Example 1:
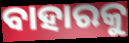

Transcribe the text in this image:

ବାହାରକୁ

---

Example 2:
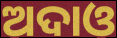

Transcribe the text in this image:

ଅଦାଓ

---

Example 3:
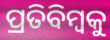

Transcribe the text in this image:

ପ୍ରତିବିମ୍ବକୁ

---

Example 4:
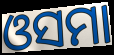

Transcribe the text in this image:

ଓସମା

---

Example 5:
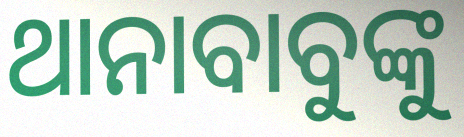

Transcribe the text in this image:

ଥାନାବାବୁଙ୍କୁ